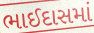
ભાઈદાસમાં